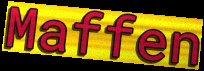
Maffen